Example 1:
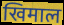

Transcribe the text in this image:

खिमाल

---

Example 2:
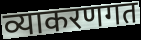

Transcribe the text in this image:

व्याकरणगत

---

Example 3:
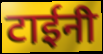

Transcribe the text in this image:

टाईनी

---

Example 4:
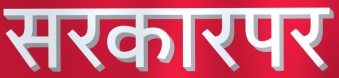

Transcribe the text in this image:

सरकारपर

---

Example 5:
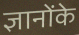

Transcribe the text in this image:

ज्ञानोंके